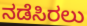
ನಡೆಸಿರಲು